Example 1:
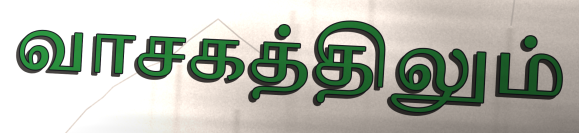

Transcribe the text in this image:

வாசகத்திலும்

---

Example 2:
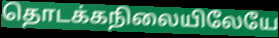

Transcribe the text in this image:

தொடக்கநிலையிலேயே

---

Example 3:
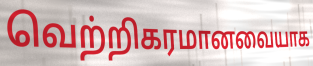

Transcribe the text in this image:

வெற்றிகரமானவையாக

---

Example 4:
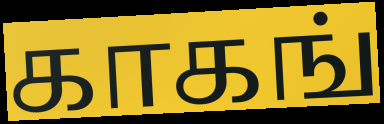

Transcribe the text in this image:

காகங்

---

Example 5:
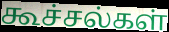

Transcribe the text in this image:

கூச்சல்கள்